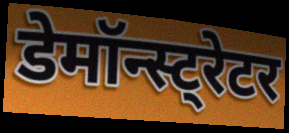
डेमॉन्स्ट्रेटर